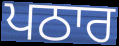
ਪਠਾਰ